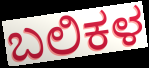
ಬಲಿಕಳ